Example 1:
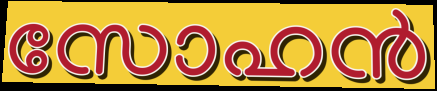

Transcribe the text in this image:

സോഹൻ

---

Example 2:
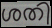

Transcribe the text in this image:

ശതി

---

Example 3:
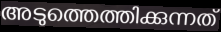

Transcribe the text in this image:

അടുത്തെത്തിക്കുന്നത്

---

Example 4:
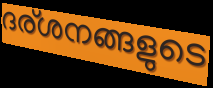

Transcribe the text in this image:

ദര്ശനങ്ങളുടെ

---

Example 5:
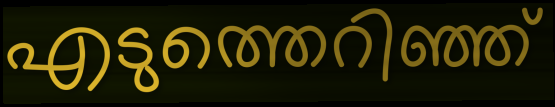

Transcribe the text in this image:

എടുത്തെറിഞ്ഞ്